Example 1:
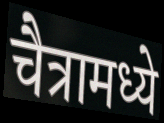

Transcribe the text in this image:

चैत्रामध्ये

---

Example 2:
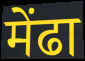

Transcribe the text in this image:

मेंढा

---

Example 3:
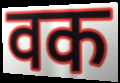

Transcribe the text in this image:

वक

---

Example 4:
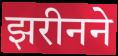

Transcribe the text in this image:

झरीनने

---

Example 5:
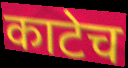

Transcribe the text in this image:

काटेच